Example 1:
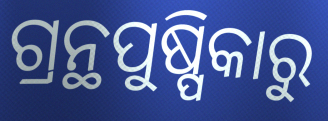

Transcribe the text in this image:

ଗ୍ରନ୍ଥପୁଷ୍ପିକାରୁ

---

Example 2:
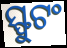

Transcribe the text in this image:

ସ୍ଫୁଟଂ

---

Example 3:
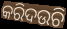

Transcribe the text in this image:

କରିଦଉଚି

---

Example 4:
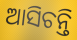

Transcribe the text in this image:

ଆସିଚନ୍ତି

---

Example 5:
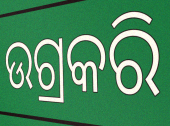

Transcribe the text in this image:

ଉଗ୍ରକରି